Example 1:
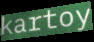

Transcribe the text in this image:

kartoy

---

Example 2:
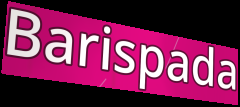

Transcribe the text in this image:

Barispada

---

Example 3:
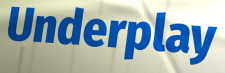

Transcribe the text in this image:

Underplay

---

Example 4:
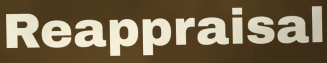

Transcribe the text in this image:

Reappraisal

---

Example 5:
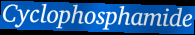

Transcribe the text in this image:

Cyclophosphamide